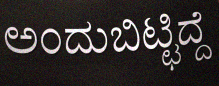
ಅಂದುಬಿಟ್ಟಿದ್ದೆ